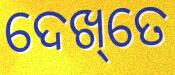
ଦେଖ୍‌ତେ